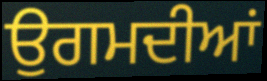
ਉਗਮਦੀਆਂ